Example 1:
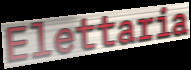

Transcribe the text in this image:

Elettaria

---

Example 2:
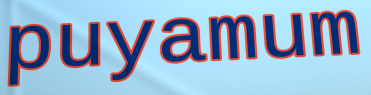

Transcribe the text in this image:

puyamum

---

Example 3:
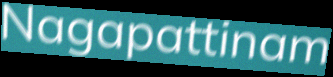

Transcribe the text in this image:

Nagapattinam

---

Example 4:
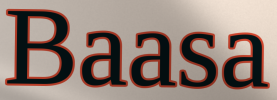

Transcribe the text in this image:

Baasa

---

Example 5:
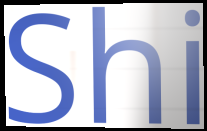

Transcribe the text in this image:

Shi